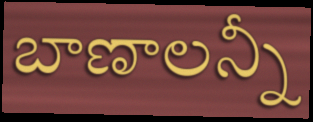
బాణాలన్నీ